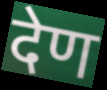
देण